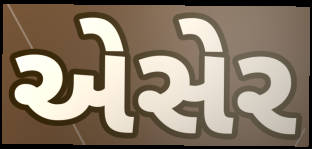
એસેર